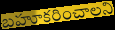
బహూకరించాలని